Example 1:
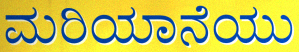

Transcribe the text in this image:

ಮರಿಯಾನೆಯು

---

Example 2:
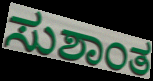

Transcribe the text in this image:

ಸುಶಾಂತ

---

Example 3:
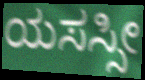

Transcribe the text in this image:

ಯಸಸ್ಸೀ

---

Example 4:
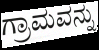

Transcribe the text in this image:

ಗ್ರಾಮವನ್ನು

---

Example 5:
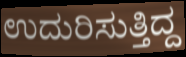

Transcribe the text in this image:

ಉದುರಿಸುತ್ತಿದ್ದ